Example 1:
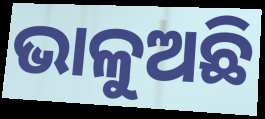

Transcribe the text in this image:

ଭାଳୁଅଛି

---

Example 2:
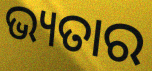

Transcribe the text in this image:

ଭ୍ୟତାର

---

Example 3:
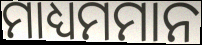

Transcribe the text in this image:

ମାଧ୍ୟମମାନ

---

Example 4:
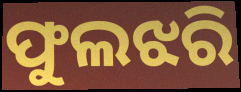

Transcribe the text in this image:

ଫୁଲଝରି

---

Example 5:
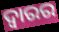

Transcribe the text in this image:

ଦ୍ୱାରର